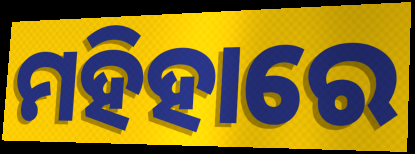
ମହିହାରେ